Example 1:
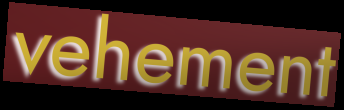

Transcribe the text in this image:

vehement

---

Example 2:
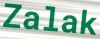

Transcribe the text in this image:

Zalak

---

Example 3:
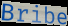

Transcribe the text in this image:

Bribe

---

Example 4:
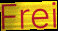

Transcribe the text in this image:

Frei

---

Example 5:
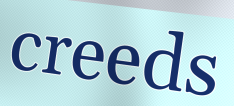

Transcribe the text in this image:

creeds